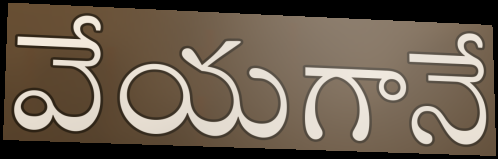
వేయగానే